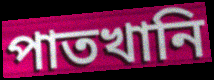
পাতখানি